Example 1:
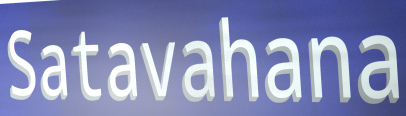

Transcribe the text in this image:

Satavahana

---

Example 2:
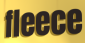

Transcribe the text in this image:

fleece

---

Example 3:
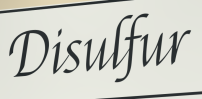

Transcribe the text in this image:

Disulfur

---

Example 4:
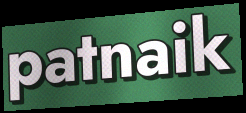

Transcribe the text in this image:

patnaik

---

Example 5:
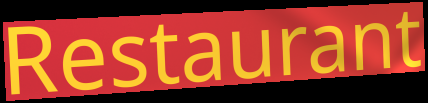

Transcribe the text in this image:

Restaurant